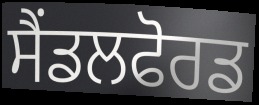
ਸੈਂਡਲਫੋਰਡ